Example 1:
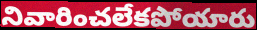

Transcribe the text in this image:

నివారించలేకపోయారు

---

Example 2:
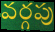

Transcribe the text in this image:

వర్గపు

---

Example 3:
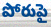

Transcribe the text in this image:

పోరుపై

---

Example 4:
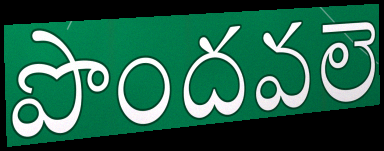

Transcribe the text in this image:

పొందవలె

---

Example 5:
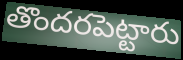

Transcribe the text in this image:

తొందరపెట్టారు